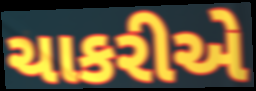
ચાકરીએ